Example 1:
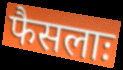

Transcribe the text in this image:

फैसलाः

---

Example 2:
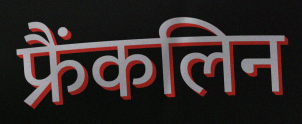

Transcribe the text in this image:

फ्रैंकलिन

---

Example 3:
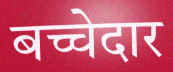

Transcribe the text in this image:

बच्चेदार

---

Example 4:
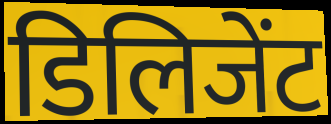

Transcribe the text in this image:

डिलिजेंट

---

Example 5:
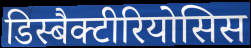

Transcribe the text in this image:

डिस्बैक्टीरियोसिस